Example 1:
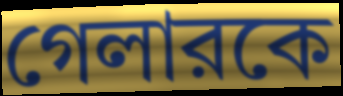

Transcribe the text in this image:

গেলারকে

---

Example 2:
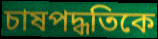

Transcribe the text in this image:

চাষপদ্ধতিকে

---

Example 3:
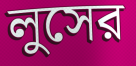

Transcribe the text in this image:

লুসের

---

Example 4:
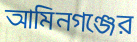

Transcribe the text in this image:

আমিনগঞ্জের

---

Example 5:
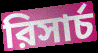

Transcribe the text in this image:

রিসার্চ